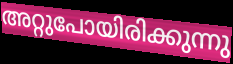
അറ്റുപോയിരിക്കുന്നു